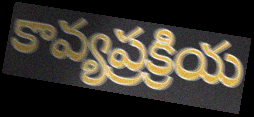
కావ్యప్రక్రియ